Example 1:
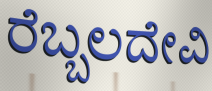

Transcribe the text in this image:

ರೆಬ್ಬಲದೇವಿ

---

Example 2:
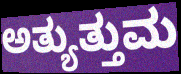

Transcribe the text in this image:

ಅತ್ಯುತ್ತುಮ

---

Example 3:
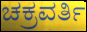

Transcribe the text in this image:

ಚಕ್ರವರ್ತಿ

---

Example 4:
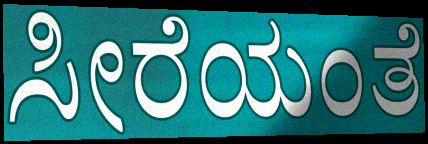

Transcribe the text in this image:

ಸೀರೆಯಂತೆ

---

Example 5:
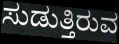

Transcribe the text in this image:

ಸುಡುತ್ತಿರುವ